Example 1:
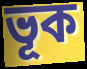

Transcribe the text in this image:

ভূক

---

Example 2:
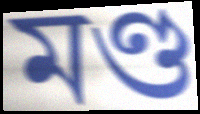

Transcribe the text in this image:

মণ্ড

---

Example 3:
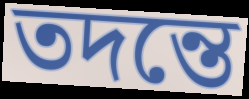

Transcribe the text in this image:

তদন্তে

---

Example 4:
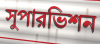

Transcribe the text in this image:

সুপারভিশন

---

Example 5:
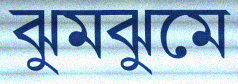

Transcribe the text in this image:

ঝুমঝুমে